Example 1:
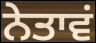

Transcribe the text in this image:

ਨੇਤਾਵਂ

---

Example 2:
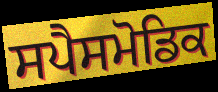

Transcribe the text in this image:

ਸਪੈਸਮੋਡਿਕ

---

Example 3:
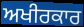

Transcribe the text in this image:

ਅਖੀਰਕਾਰ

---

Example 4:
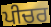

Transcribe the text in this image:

ਪੀਚਰ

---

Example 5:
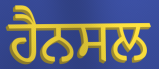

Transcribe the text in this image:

ਹੈਨਸਲ